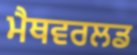
ਮੈਥਵਰਲਡ